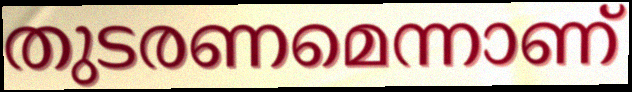
തുടരണമെന്നാണ്